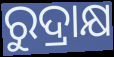
ରୁଦ୍ରାକ୍ଷ